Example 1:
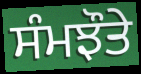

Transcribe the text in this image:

ਸੰਮਝੌਤੇ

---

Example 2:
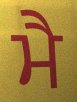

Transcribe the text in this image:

ਮੈ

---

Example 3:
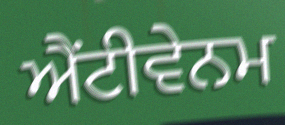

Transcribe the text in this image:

ਐਂਟੀਵੇਨਮ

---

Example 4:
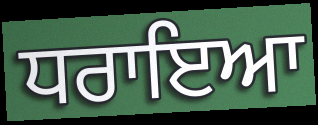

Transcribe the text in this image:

ਧਰਾਇਆ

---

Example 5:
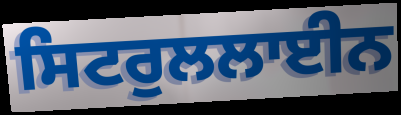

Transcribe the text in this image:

ਸਿਟਰੁਲਲਾਈਨ